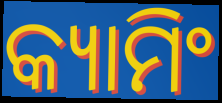
କ୍ୟାମିଂ